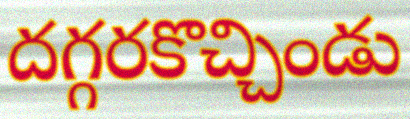
దగ్గరకొచ్చిండు